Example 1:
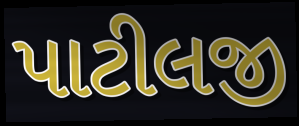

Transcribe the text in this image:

પાટીલજી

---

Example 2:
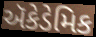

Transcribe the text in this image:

ઍકેડેમિક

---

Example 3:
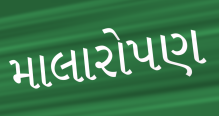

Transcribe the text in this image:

માલારોપણ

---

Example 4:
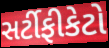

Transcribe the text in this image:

સર્ટીફીકેટો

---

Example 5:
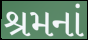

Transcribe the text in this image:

શ્રમનાં